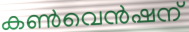
കൺവെൻഷന്